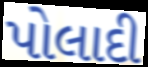
પોલાદી